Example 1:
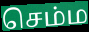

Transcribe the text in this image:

செம்ம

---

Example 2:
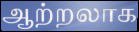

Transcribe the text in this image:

ஆற்றலாக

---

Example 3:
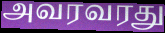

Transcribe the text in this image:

அவரவரது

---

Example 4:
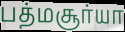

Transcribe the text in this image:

பத்மசூர்யா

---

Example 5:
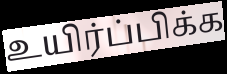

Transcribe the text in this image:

உயிர்ப்பிக்க